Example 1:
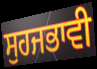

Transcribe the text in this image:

ਸੁਹਜਭਾਵੀ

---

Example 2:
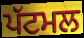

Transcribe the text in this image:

ਪੱਟਮਲ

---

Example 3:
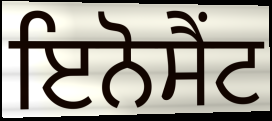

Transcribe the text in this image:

ਇਨੋਸੈਂਟ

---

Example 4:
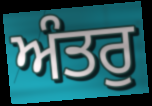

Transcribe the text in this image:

ਅੰਤਰੁ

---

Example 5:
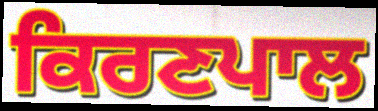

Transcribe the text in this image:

ਕਿਰਣਪਾਲ